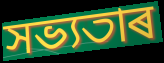
সভ্যতাৰ